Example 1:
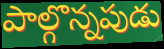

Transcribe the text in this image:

పాల్గొన్నపుడు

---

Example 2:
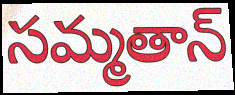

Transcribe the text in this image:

సమ్మతాన్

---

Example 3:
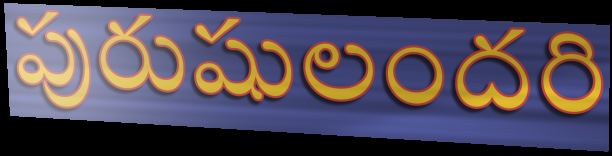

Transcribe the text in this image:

పురుషులందరి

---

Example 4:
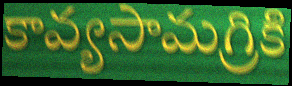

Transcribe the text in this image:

కావ్యసామగ్రికి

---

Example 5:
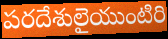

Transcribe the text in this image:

పరదేశులైయుంటిరి